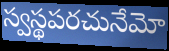
స్వస్థపరచునేమో